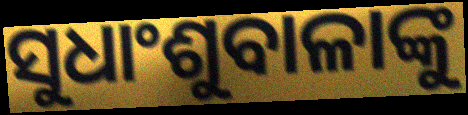
ସୁଧାଂଶୁବାଳାଙ୍କୁ